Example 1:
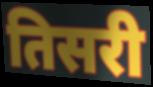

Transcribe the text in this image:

तिसरी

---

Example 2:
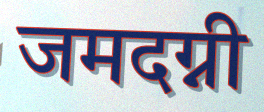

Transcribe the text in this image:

जमदग्नी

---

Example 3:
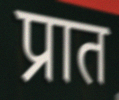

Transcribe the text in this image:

प्रात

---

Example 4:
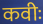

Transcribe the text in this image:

कवीः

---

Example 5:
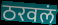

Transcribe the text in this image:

ठरवलं